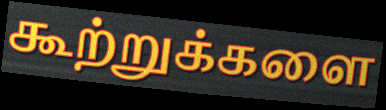
கூற்றுக்களை